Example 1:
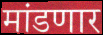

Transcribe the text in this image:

मांडणार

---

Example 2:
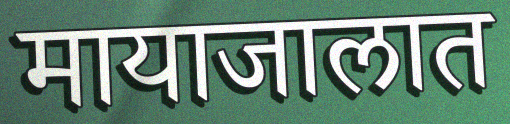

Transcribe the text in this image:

मायाजालात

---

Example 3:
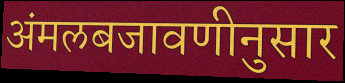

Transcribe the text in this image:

अंमलबजावणीनुसार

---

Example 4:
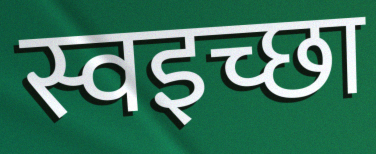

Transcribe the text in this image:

स्वइच्छा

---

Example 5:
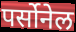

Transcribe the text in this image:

पर्सोनेल